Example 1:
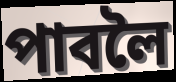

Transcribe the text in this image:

পাবলৈ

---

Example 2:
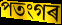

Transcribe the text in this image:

পতংগৰ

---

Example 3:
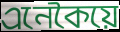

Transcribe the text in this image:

এনেকৈয়ে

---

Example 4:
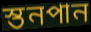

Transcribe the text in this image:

স্তনপান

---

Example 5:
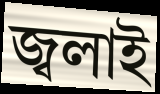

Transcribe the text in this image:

জ্বলাই